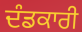
ਦੰਡਕਾਰੀ